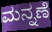
ಮನ್ನಣೆ